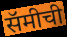
सॅमीची